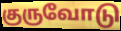
குருவோடு